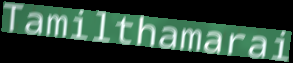
Tamilthamarai